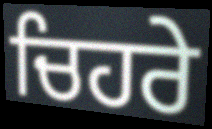
ਚਿਹਰੇ